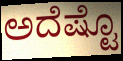
ಅದೆಷ್ಟೊ